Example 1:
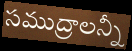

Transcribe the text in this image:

సముద్రాలన్నీ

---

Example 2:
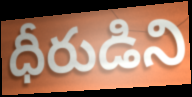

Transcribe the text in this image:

ధీరుడిని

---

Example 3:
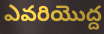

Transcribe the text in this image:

ఎవరియొద్ద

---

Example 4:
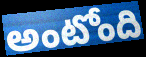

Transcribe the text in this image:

అంటోంది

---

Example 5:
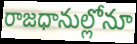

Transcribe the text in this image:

రాజధానుల్లోనూ